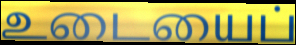
உடையைப்